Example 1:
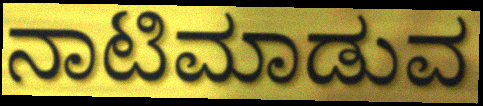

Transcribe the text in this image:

ನಾಟಿಮಾಡುವ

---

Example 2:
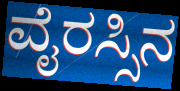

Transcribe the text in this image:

ವೈರಸ್ಸಿನ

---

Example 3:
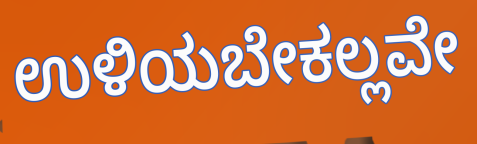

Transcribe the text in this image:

ಉಳಿಯಬೇಕಲ್ಲವೇ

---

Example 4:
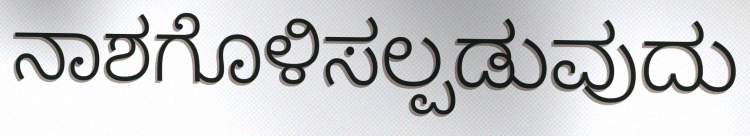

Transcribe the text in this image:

ನಾಶಗೊಳಿಸಲ್ಪಡುವುದು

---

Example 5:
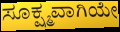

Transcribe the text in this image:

ಸೂಕ್ಷ್ಮವಾಗಿಯೇ